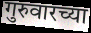
गुरुवारच्या